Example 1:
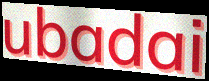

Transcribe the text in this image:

ubadai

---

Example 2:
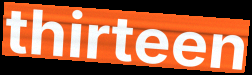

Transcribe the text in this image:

thirteen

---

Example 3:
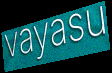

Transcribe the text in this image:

vayasu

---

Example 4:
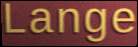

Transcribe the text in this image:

Lange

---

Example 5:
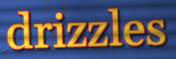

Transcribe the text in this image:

drizzles